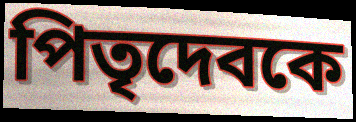
পিতৃদেবকে